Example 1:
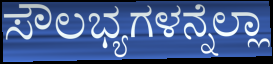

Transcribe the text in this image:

ಸೌಲಭ್ಯಗಳನ್ನೆಲ್ಲಾ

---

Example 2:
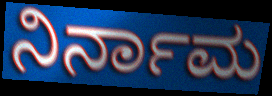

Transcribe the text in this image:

ನಿರ್ನಾಮ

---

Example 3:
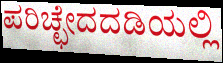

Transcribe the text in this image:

ಪರಿಚ್ಛೇದದಡಿಯಲ್ಲಿ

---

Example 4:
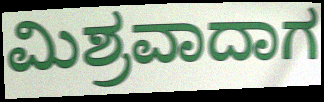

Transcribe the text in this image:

ಮಿಶ್ರವಾದಾಗ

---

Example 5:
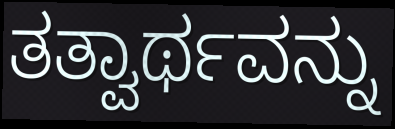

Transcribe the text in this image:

ತತ್ವಾರ್ಥವನ್ನು